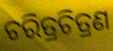
ଚରିତ୍ରଚିତ୍ରଣ